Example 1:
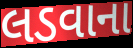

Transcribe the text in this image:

લડવાના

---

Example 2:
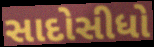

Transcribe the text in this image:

સાદોસીધો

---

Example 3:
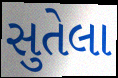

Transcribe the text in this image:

સુતેલા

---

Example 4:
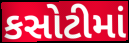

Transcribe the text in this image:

કસોટીમાં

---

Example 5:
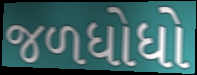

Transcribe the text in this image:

જળધોધો